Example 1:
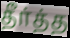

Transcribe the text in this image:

தீர்த்த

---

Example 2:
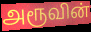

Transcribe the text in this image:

அரூவின்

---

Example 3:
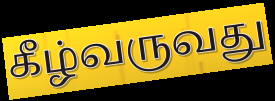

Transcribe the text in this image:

கீழ்வருவது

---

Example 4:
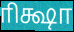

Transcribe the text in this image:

ரிக்ஷா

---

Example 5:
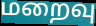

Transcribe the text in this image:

மறைவு